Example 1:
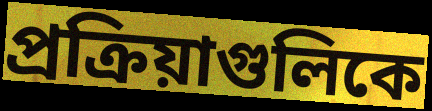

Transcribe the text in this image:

প্রক্রিয়াগুলিকে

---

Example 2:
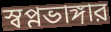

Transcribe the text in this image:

স্বপ্নভাঙ্গার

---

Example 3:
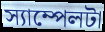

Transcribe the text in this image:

স্যাম্পেলটা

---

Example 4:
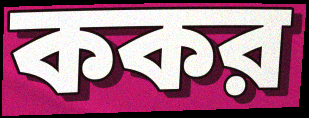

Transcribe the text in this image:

ককর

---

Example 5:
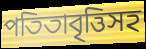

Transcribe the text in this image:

পতিতাবৃত্তিসহ